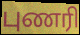
புணரி